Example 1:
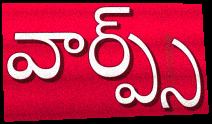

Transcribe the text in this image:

వార్ప్స్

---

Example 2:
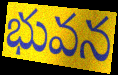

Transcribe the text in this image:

భువన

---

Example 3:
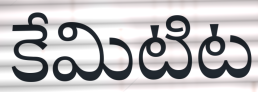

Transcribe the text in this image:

కేమిటిట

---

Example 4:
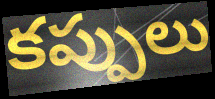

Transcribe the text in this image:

కప్పులు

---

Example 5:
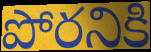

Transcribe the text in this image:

పోరనికి